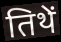
तिथें